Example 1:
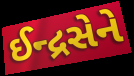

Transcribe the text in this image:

ઈન્દ્રસેને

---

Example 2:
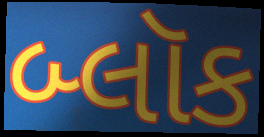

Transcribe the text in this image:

બ્લૉક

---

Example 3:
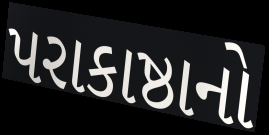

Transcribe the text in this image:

પરાકાષ્ઠાનો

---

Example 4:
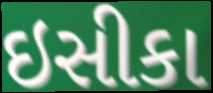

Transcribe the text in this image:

ઇસીકા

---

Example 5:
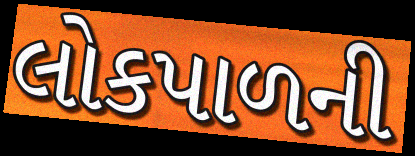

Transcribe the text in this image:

લોકપાળની